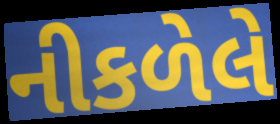
નીકળેલે